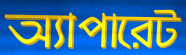
অ্যাপারেট